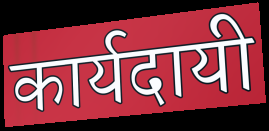
कार्यदायी